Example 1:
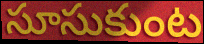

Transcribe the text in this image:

సూసుకుంట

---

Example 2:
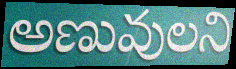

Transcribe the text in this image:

అణువులని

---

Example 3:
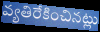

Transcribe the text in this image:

వ్యతిరేకించినట్లు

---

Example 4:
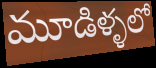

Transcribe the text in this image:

మూడిళ్ళలో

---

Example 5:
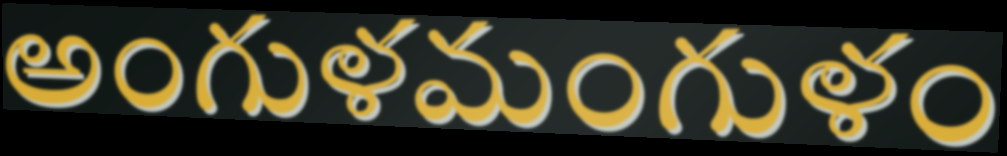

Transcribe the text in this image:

అంగుళమంగుళం